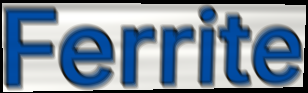
Ferrite